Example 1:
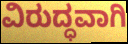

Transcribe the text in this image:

ವಿರುದ್ಧವಾಗಿ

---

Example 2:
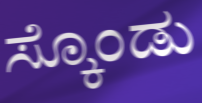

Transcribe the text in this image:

ಸ್ಕೊಂಡು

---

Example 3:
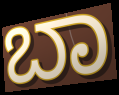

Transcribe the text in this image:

ಬಾ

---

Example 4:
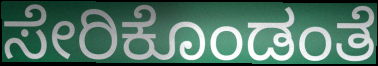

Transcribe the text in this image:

ಸೇರಿಕೊಂಡಂತೆ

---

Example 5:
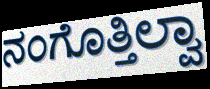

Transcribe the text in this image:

ನಂಗೊತ್ತಿಲ್ವಾ